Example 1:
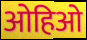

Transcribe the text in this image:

ओहिओ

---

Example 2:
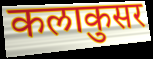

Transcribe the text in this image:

कलाकुसर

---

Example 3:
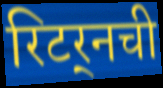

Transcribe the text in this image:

रिटर्नची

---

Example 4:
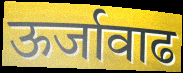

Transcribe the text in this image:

ऊर्जावाढ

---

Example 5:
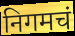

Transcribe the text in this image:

निगमचं